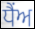
ਧੈਂਅ